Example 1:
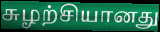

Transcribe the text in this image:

சுழற்சியானது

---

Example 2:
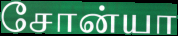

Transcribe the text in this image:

சோன்யா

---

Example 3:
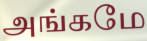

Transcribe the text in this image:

அங்கமே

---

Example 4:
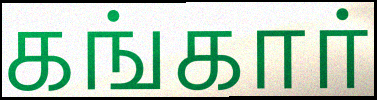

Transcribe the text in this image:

கங்கார்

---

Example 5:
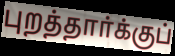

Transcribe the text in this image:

புறத்தார்க்குப்